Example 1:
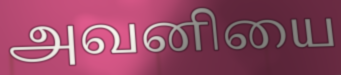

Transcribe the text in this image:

அவனியை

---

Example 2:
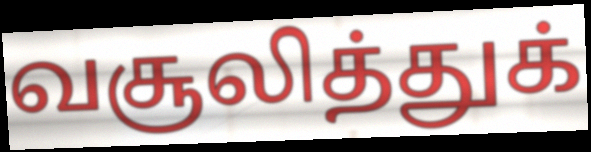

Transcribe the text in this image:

வசூலித்துக்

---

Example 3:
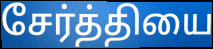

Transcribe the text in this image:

சேர்த்தியை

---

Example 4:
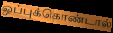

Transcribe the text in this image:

ஒப்புக்கொண்டால்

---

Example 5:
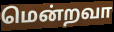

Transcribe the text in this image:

மென்றவா